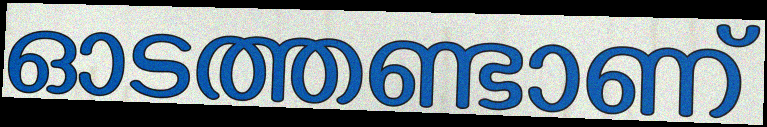
ഓടത്തണ്ടാണ്